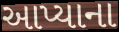
આપ્યાના